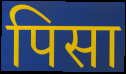
पिसा